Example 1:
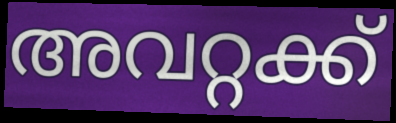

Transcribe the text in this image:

അവറ്റക്ക്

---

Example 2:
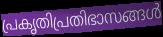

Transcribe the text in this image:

പ്രകൃതിപ്രതിഭാസങ്ങൾ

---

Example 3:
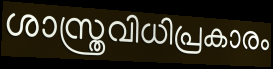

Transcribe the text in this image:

ശാസ്ത്രവിധിപ്രകാരം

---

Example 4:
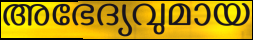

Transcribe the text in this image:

അഭേദ്യവുമായ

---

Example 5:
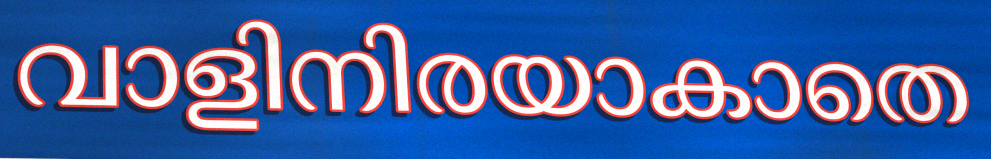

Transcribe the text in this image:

വാളിനിരയാകാതെ